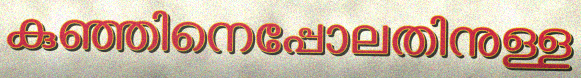
കുഞ്ഞിനെപ്പോലതിനുള്ള